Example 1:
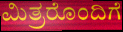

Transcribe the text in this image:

ಮಿತ್ರರೊಂದಿಗೆ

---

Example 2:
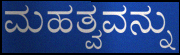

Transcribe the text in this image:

ಮಹತ್ವವನ್ನು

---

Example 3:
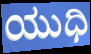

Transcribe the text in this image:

ಯುಧಿ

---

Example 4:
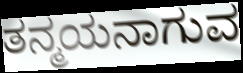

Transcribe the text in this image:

ತನ್ಮಯನಾಗುವ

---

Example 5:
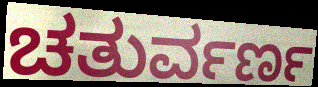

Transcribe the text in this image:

ಚತುರ್ವರ್ಣ